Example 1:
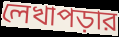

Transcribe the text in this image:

লেখাপড়ার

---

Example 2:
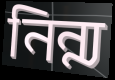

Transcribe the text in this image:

নিন্ম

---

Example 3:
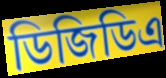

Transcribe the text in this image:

ডিজিডিএ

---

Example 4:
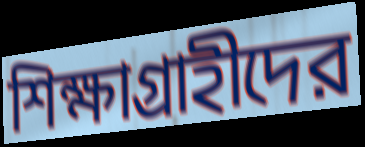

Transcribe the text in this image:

শিক্ষাগ্রাহীদের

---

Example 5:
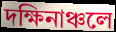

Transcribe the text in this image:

দক্ষিনাঞ্চলে